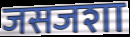
जसजशा